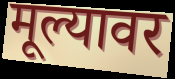
मूल्यावर